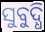
ସୁବୁଦ୍ଧି